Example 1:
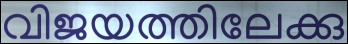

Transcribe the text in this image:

വിജയത്തിലേക്കു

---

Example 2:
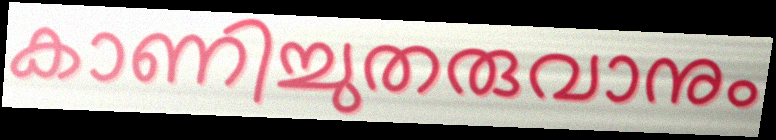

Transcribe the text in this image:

കാണിച്ചുതരുവാനും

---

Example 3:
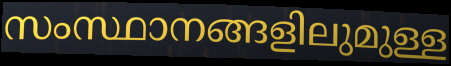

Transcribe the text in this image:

സംസ്ഥാനങ്ങളിലുമുള്ള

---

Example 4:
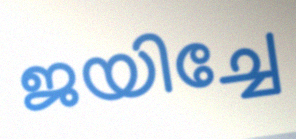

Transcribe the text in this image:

ജയിച്ചേ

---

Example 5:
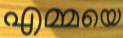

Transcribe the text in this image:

എമ്മയെ